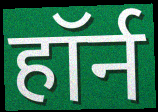
हॉर्न